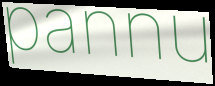
pannu